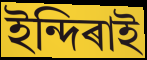
ইন্দিৰাই